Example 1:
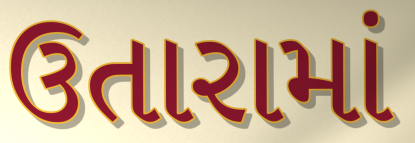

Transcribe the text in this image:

ઉતારામાં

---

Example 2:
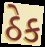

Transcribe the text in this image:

ઠેક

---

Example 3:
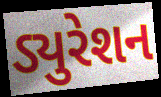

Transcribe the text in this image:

ડ્યુરેશન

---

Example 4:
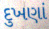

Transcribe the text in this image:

દુખણાં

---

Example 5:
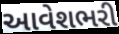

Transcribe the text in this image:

આવેશભરી